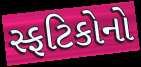
સ્ફટિકોનો